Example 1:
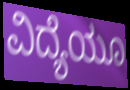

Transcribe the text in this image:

ವಿದ್ಯೆಯೂ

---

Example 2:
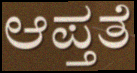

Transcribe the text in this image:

ಆಪ್ತತೆ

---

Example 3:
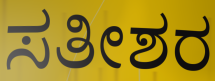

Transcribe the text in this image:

ಸತೀಶರ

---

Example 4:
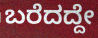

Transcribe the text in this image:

ಬರೆದದ್ದೇ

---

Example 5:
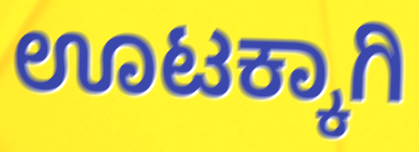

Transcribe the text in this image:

ಊಟಕ್ಕಾಗಿ